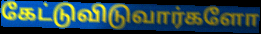
கேட்டுவிடுவார்களோ